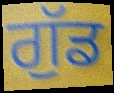
ਗੁੱਡ